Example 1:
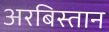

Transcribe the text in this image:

अरबिस्तान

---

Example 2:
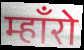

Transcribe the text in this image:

म्हाँरो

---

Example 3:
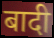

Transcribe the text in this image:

बादी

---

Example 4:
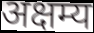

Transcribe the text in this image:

अक्षम्य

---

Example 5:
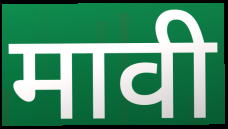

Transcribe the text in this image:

मावी